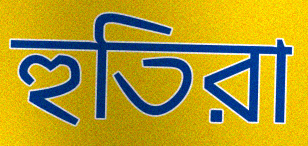
হুতিরা